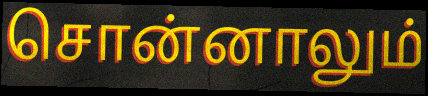
சொன்னாலும்